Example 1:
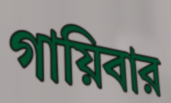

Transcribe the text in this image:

গায়িবার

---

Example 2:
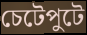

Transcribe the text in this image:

চেটেপুটে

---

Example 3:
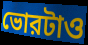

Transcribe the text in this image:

ভোরটাও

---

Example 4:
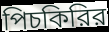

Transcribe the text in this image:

পিচকিরির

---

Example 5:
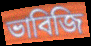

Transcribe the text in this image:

ভাবিজি